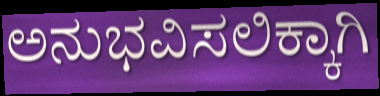
ಅನುಭವಿಸಲಿಕ್ಕಾಗಿ